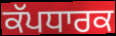
ਕੱਪਧਾਰਕ